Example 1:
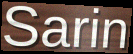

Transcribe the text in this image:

Sarin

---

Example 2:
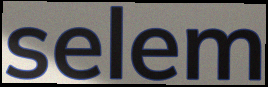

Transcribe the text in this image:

selem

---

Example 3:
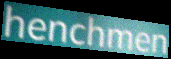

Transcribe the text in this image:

henchmen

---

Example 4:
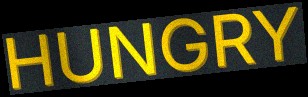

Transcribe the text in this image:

HUNGRY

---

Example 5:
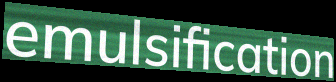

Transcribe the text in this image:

emulsification